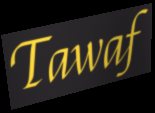
Tawaf